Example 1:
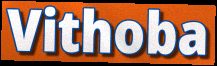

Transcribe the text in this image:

Vithoba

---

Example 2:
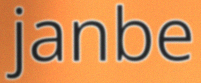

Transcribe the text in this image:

janbe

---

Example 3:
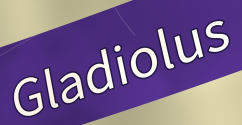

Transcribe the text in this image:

Gladiolus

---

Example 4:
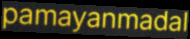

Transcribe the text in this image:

pamayanmadal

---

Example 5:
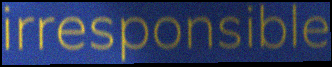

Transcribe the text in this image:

irresponsible